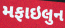
મફાઇલુન